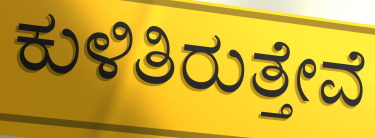
ಕುಳಿತಿರುತ್ತೇವೆ